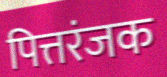
पित्तरंजक